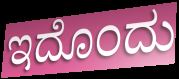
ಇದೊಂದು